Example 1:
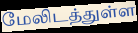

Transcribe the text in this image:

மேலிடத்துள்ள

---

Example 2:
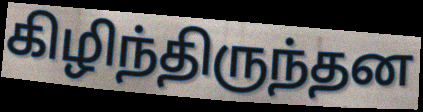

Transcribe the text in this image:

கிழிந்திருந்தன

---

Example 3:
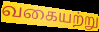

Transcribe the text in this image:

வகையற்று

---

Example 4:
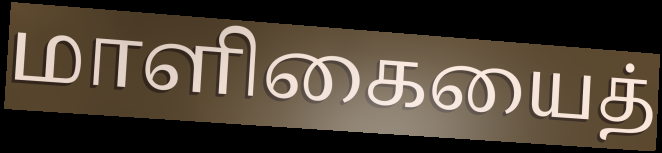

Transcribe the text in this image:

மாளிகையைத்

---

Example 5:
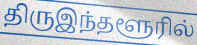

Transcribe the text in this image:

திருஇந்தளூரில்